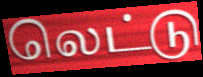
லெட்டு